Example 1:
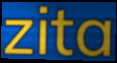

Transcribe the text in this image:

zita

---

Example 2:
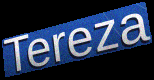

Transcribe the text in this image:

Tereza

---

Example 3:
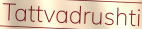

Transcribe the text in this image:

Tattvadrushti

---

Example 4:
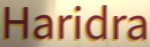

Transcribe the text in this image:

Haridra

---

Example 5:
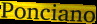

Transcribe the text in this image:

Ponciano